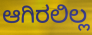
ಆಗಿರಲಿಲ್ಲ